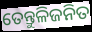
ତେନ୍ତୁଳିଜନିତ